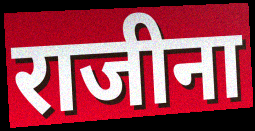
राजीना